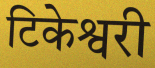
टिकेश्वरी